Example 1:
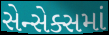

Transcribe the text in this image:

સેન્સેક્સમાં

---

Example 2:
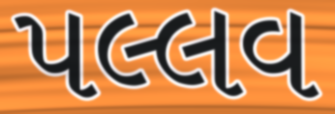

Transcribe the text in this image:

પલ્લવ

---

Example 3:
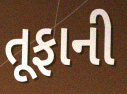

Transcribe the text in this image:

તૂફાની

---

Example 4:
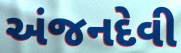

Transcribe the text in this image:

અંજનદેવી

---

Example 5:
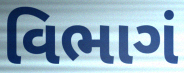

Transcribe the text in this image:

વિભાગં